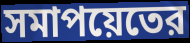
সমাপয়েতের